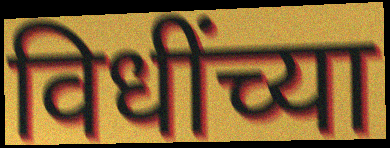
विधींच्या